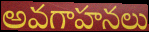
అవగాహనలు